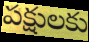
పక్షులకు